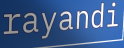
rayandi